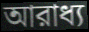
আরাধ্য